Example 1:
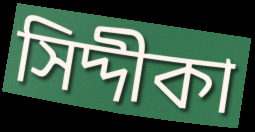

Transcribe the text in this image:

সিদ্দীকা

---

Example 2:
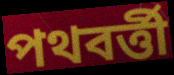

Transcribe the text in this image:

পথবর্ত্তী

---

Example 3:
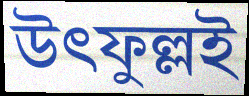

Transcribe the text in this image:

উৎফুল্লই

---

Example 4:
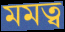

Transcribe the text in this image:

মমত্ব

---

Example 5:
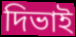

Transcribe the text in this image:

দিভাই